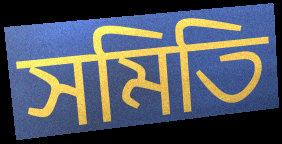
সমিতি